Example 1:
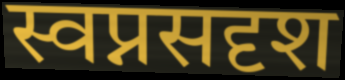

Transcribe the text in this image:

स्वप्नसदृश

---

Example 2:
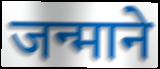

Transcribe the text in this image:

जन्माने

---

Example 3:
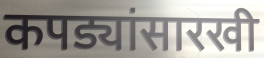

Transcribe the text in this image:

कपड्यांसारखी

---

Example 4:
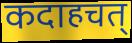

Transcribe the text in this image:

कदाहचत्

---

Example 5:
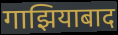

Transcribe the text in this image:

गाझियाबाद